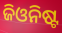
ଜିଓନିଷ୍ଟ